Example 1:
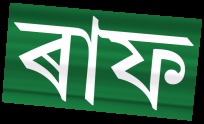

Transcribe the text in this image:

ৰাফ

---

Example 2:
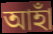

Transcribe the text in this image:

আহাঁ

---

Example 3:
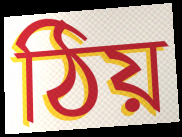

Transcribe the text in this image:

ঠিয়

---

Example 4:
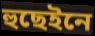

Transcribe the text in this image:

হুছেইনে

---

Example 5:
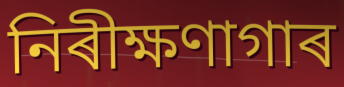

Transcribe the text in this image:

নিৰীক্ষণাগাৰ